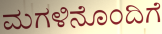
ಮಗಳಿನೊಂದಿಗೆ